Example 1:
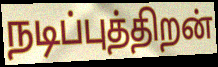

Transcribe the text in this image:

நடிப்புத்திறன்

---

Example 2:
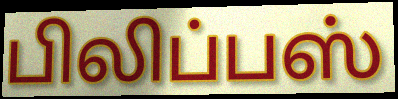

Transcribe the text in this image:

பிலிப்பஸ்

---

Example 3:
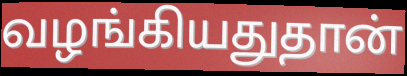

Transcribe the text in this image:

வழங்கியதுதான்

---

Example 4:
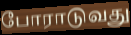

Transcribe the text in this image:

போராடுவது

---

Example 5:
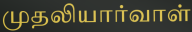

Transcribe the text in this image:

முதலியார்வாள்